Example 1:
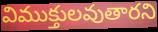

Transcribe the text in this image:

విముక్తులవుతారని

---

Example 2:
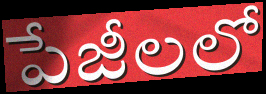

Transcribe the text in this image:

పేజీలలో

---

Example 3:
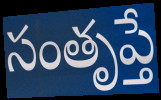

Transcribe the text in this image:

సంతృప్తే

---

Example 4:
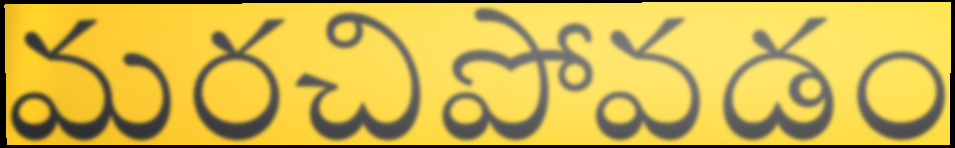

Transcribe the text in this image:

మరచిపోవడం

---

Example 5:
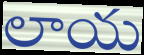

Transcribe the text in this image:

లాయ